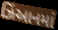
ઝિંઆનમાં